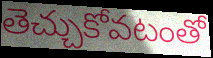
తెచ్చుకోవటంతో